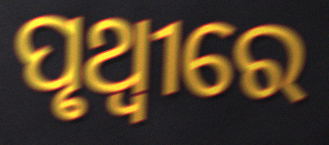
ପୃଥ୍ୱୀରେ